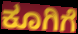
ಕೂಗಿಗೆ